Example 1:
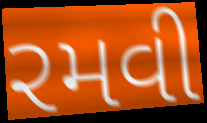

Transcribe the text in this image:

રમવી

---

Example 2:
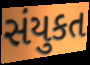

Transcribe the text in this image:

સંયુકત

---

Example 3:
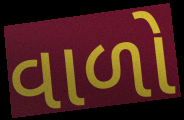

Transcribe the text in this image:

વાળો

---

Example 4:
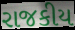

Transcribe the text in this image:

રાજકીય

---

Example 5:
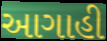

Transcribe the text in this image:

આગાહી